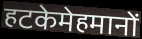
हटकेमेहमानों